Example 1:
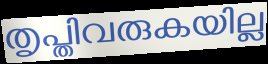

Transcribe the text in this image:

തൃപ്തിവരുകയില്ല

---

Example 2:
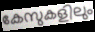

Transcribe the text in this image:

കേസുകളിലും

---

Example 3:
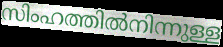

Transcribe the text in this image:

സിംഹത്തിൽനിന്നുള്ള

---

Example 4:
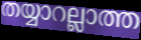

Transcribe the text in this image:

തയ്യാറല്ലാത്ത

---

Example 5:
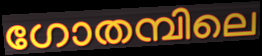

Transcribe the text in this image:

ഗോതമ്പിലെ